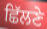
ਛਿੱਲਣੇ